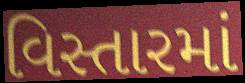
વિસ્તારમાં